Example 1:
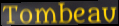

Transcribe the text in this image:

Tombeau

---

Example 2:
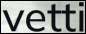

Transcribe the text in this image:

vetti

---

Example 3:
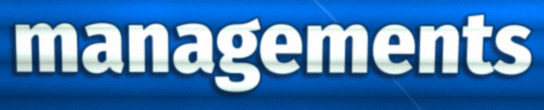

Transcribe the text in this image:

managements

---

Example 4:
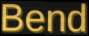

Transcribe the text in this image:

Bend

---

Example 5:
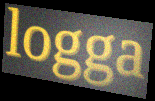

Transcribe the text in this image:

logga